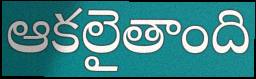
ఆకలైతాంది